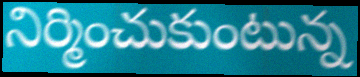
నిర్మించుకుంటున్న